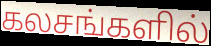
கலசங்களில்